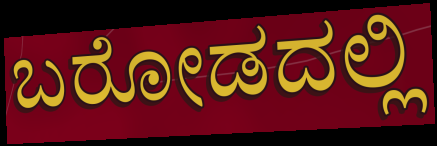
ಬರೋಡದಲ್ಲಿ